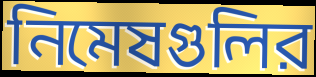
নিমেষগুলির